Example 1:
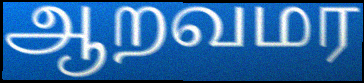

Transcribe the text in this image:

ஆறவமர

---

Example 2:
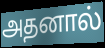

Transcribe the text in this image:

அதனால்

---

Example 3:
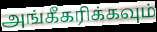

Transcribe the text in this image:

அங்கீகரிக்கவும்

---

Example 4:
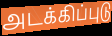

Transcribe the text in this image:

அடக்கிப்புடு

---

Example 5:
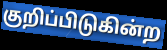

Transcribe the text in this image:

குறிப்பிடுகின்ற